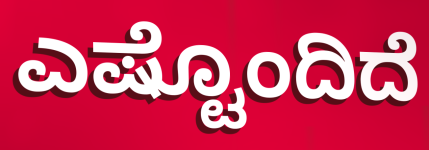
ಎಷ್ಟೊಂದಿದೆ